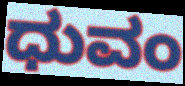
ಧುವಂ